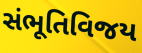
સંભૂતિવિજય